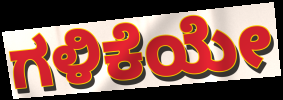
ಗಳಿಕೆಯೇ